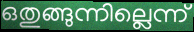
ഒതുങ്ങുന്നില്ലെന്ന്